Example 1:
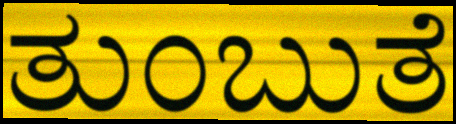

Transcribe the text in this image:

ತುಂಬುತೆ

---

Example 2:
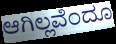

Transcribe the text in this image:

ಆಗಿಲ್ಲವೆಂದೂ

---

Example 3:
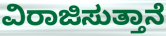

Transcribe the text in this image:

ವಿರಾಜಿಸುತ್ತಾನೆ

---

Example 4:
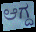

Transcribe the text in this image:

ಆಗ್ದ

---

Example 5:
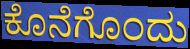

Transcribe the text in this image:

ಕೊನೆಗೊಂದು